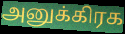
அனுக்கிரக